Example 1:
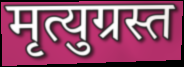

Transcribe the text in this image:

मृत्युग्रस्त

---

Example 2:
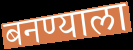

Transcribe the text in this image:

बनण्याला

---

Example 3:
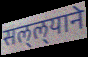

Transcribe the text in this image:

सल्ल्याने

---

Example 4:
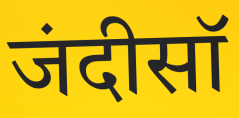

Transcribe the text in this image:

जंदीसॉ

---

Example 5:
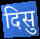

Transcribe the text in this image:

दिसु